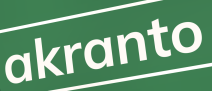
akranto